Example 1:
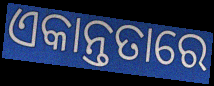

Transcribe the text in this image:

ଏକାନ୍ତତାରେ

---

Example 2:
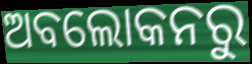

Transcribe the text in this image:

ଅବଲୋକନରୁ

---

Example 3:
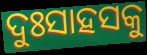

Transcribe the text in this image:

ଦୁଃସାହସକୁ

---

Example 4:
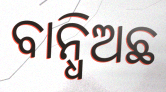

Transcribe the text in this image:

ବାନ୍ଧିଅଛ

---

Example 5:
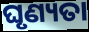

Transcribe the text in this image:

ଘୃଣ୍ୟତା